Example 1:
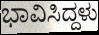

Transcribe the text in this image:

ಭಾವಿಸಿದ್ದಳು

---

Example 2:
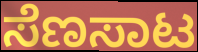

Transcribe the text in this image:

ಸೆಣಸಾಟ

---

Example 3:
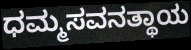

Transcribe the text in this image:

ಧಮ್ಮಸವನತ್ಥಾಯ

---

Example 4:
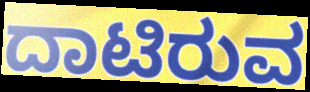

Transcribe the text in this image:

ದಾಟಿರುವ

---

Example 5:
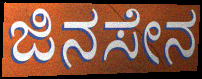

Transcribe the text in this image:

ಜಿನಸೇನ